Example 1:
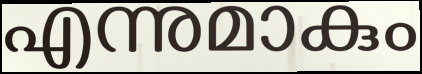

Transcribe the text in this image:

എന്നുമാകും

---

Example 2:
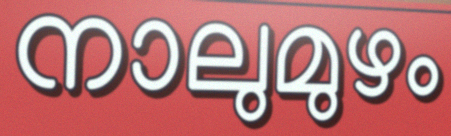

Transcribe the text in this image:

നാലുമുഴം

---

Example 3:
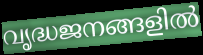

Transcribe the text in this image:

വൃദ്ധജനങ്ങളിൽ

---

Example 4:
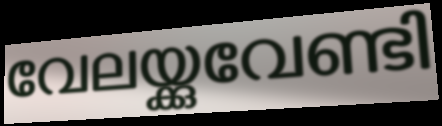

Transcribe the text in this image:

വേലയ്ക്കുവേണ്ടി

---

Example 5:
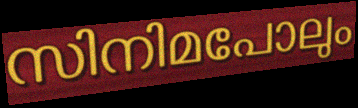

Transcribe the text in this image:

സിനിമപോലും